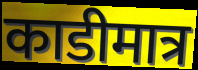
काडीमात्र